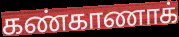
கண்காணாக்